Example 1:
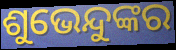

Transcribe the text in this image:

ଶୁଭେନ୍ଦୁଙ୍କର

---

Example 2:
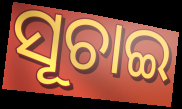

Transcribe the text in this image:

ସୂଚାଇ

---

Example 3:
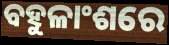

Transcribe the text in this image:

ବହୁଳାଂଶରେ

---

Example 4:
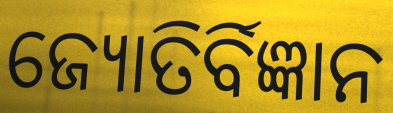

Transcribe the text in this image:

ଜ୍ୟୋତିର୍ବିଜ୍ଞାନ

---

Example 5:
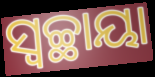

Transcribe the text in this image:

ସ୍ୱଚ୍ଛାୟା